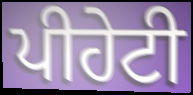
ਪੀਹੇਟੀ